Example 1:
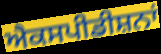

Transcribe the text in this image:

ਐਕਸਪੀਡੀਸ਼ਨਾਂ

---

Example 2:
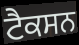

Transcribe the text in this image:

ਟੈਕਸਨ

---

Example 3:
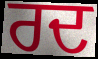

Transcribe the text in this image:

ਰਦ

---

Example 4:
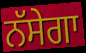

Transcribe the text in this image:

ਨੱਸੇਗਾ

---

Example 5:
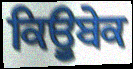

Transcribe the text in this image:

ਕਿਊਬੇਕ